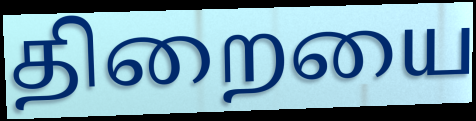
திறையை